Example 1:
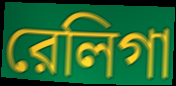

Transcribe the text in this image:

রেলিগা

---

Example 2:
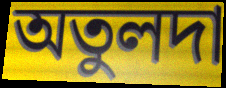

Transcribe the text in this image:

অতুলদা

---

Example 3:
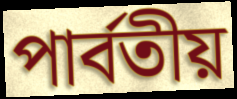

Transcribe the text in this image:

পার্বতীয়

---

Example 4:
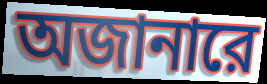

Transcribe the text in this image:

অজানারে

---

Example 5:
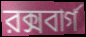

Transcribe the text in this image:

রক্সবার্গ